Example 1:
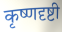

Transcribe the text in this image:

कृष्णदृष्टी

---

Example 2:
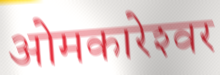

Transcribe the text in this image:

ओमकारेश्वर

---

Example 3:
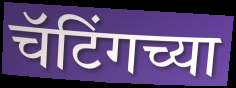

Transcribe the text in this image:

चॅटिंगच्या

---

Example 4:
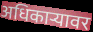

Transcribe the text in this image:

अधिकार्‍यावर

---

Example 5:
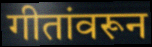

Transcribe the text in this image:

गीतांवरून